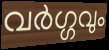
വർഗ്ഗവും